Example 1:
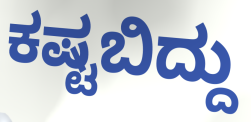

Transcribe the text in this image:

ಕಷ್ಟಬಿದ್ದು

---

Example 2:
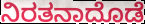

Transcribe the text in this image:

ನಿರತನಾದೊಡೆ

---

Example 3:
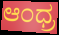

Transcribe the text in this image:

ಆಂಧ್ರ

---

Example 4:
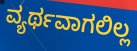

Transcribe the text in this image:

ವ್ಯರ್ಥವಾಗಲಿಲ್ಲ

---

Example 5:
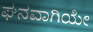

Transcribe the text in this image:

ಘನವಾಗಿಯೇ